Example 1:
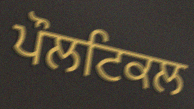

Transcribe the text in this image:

ਪੌਲਟਿਕਲ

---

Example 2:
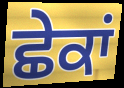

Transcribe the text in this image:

ਛੇਕਾਂ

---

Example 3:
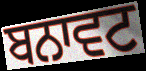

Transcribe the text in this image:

ਬਨਾਵਟ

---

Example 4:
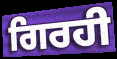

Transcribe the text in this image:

ਗਿਰਹੀ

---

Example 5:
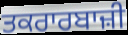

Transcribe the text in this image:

ਤਕਰਾਰਬਾਜ਼ੀ